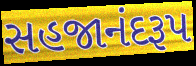
સહજાનંદરૂપ